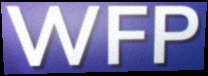
WFP